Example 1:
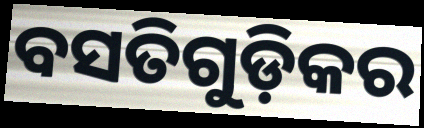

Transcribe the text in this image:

ବସତିଗୁଡ଼ିକର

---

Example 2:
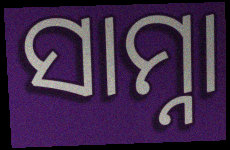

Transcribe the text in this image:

ସାମ୍ନା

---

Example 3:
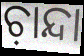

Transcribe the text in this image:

ଚ଼ାନ୍ଦା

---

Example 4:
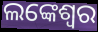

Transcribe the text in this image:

ଲଙ୍କେଶ୍ବର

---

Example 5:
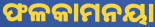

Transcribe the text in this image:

ଫଳକାମନୟା